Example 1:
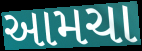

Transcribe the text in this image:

આમચા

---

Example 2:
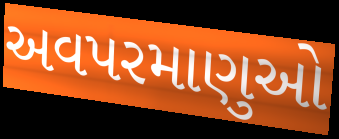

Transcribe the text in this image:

અવપરમાણુઓ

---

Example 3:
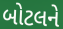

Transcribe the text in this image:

બોટલને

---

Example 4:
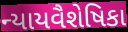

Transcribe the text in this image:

ન્યાયવૈશેષિકા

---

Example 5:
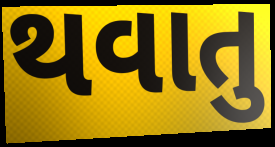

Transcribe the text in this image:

થવાતુ